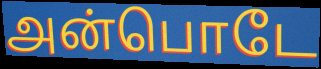
அன்பொடே